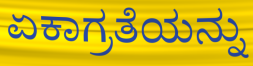
ಏಕಾಗ್ರತೆಯನ್ನು